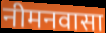
नीमनवासा